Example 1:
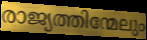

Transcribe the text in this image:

രാജ്യത്തിന്മേലും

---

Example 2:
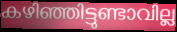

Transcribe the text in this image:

കഴിഞ്ഞിട്ടുണ്ടാവില്ല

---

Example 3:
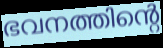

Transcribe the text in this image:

ഭവനത്തിന്റെ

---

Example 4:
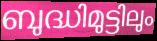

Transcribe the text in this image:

ബുദ്ധിമുട്ടിലും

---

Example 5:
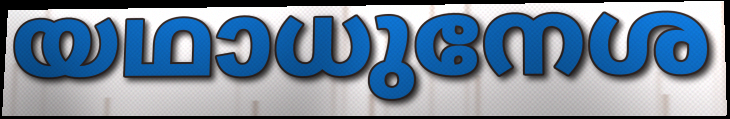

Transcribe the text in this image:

യഥാധുനേശ